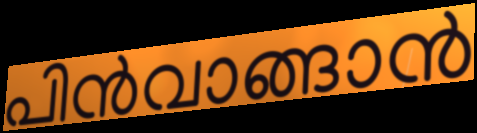
പിൻവാങ്ങാൻ